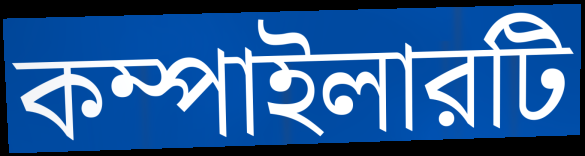
কম্পাইলারটি